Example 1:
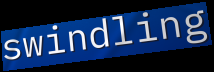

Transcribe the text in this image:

swindling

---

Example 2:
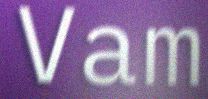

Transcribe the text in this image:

Vam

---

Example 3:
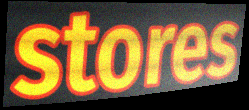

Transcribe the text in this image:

stores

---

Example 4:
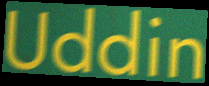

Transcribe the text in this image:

Uddin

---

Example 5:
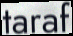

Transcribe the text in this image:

taraf